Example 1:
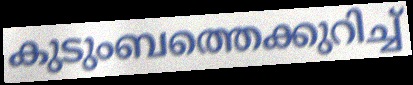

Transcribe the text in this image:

കുടുംബത്തെക്കുറിച്ച്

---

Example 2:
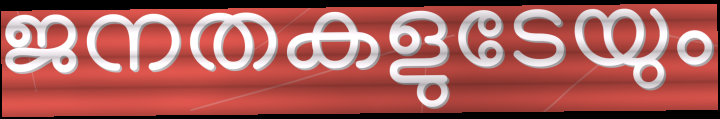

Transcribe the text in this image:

ജനതകളുടേയും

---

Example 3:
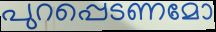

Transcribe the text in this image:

പുറപ്പെടണമോ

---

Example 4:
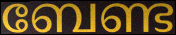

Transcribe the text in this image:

ബേണ്ട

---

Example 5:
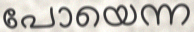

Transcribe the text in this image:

പോയെന്ന